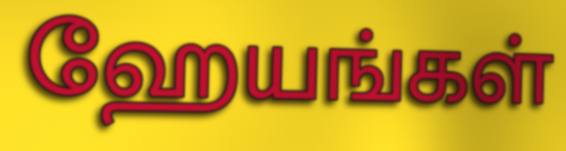
ஹேயங்கள்